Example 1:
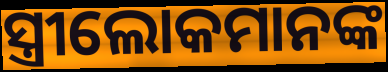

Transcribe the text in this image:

ସ୍ତ୍ରୀଲୋକମାନଙ୍କ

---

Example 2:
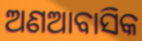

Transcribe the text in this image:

ଅଣଆବାସିକ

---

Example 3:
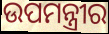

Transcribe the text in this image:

ଉପମନ୍ତ୍ରୀର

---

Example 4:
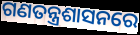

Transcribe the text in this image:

ଗଣତନ୍ତ୍ରଶାସନରେ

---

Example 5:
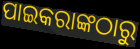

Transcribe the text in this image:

ପାଇକରାଙ୍କଠାରୁ